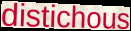
distichous